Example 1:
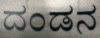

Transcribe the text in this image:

ದಂಡನ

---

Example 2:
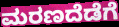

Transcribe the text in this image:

ಮರಣದೆಡೆಗೆ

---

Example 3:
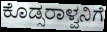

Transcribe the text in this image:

ಕೊಡ್ಸರಾಳ್ವನಿಗೆ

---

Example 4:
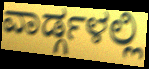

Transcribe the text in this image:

ವಾರ್ಡ್ಗಳಲ್ಲಿ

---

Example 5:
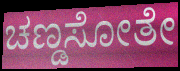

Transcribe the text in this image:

ಚಣ್ಡಸೋತೇ